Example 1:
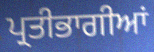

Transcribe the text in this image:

ਪ੍ਰਤੀਭਾਗੀਆਂ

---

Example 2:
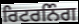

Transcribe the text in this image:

ਰਿਟਰਨਿੰਗ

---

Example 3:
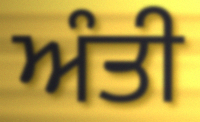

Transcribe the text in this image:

ਅੰਤੀ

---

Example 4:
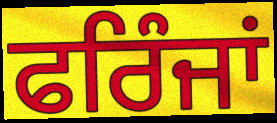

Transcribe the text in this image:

ਫਰਿੰਜਾਂ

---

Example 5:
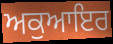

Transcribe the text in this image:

ਅਕੁਆਇਰ